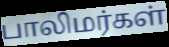
பாலிமர்கள்